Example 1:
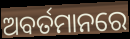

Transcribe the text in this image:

ଅବର୍ତମାନରେ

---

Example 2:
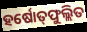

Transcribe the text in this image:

ହର୍ଷୋତ୍‌ଫୁଲ୍ଲିତ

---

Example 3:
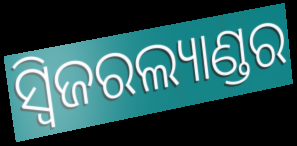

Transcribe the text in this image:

ସ୍ୱିଜରଲ୍ୟାଣ୍ଡର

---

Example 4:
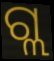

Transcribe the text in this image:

ଗ୍ଲ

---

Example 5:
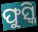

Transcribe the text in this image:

ଫୁସ୍କି